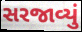
સરજાવ્યું